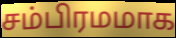
சம்பிரமமாக